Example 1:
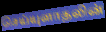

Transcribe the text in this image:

செய்யுளாதலின்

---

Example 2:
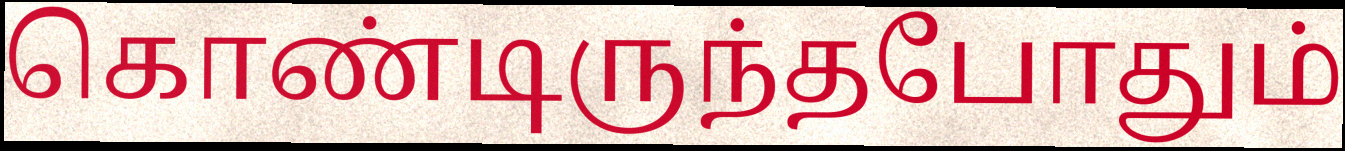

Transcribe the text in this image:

கொண்டிருந்தபோதும்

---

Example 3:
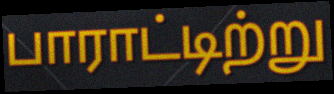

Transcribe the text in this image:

பாராட்டிற்று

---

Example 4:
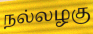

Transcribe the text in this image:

நல்லழகு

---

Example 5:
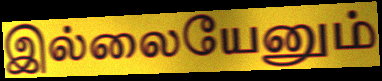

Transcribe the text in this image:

இல்லையேனும்